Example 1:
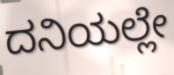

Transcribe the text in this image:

ದನಿಯಲ್ಲೇ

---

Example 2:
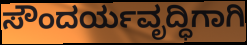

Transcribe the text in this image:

ಸೌಂದರ್ಯವೃದ್ಧಿಗಾಗಿ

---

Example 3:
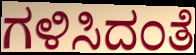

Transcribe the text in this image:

ಗಳಿಸಿದಂತೆ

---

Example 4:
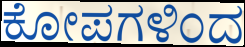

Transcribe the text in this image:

ಕೋಪಗಳಿಂದ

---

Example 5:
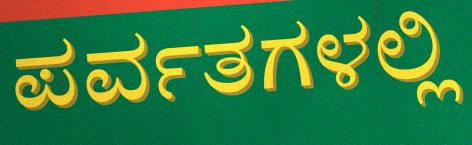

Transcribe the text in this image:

ಪರ್ವತಗಳಲ್ಲಿ